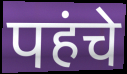
पहंचे